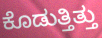
ಕೊಡುತ್ತಿತ್ತು